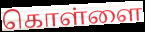
கொள்ளை